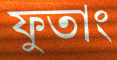
ফুতাং